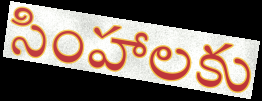
సింహాలకు